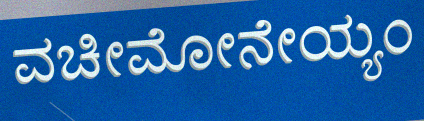
ವಚೀಮೋನೇಯ್ಯಂ